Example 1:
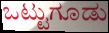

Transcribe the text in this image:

ಒಟ್ಟುಗೂಡು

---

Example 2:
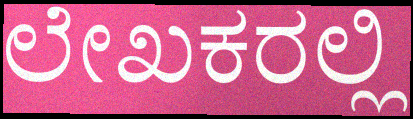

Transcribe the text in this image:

ಲೇಖಕರಲ್ಲಿ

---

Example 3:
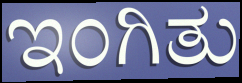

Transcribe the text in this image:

ಇಂಗಿತು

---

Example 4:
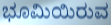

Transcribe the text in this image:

ಭೂಮಿಯಿರುವ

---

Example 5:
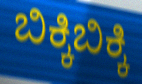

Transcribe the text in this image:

ಬಿಕ್ಕಿಬಿಕ್ಕಿ